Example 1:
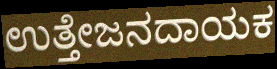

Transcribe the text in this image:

ಉತ್ತೇಜನದಾಯಕ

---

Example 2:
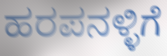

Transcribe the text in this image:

ಹರಪನಳ್ಳಿಗೆ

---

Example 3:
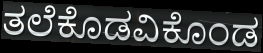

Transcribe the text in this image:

ತಲೆಕೊಡವಿಕೊಂಡ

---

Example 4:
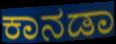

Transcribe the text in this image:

ಕಾನಡಾ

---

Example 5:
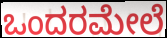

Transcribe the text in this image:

ಒಂದರಮೇಲೆ